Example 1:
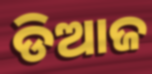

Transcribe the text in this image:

ଡିଆଜ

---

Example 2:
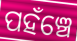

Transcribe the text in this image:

ପହଁଞ୍ଚେ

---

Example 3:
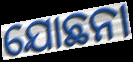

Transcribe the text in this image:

ଯୋଛନା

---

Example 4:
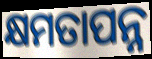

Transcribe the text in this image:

କ୍ଷମତାପନ୍ନ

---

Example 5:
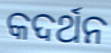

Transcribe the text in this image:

କଦର୍ଥନ